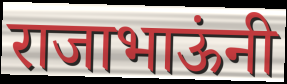
राजाभाऊंनी